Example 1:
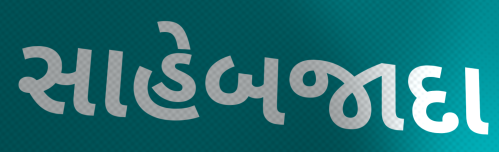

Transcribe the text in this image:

સાહેબજાદા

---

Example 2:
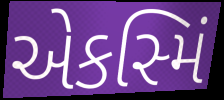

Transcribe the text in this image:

એકસ્મિં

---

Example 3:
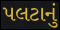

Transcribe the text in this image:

પલટાનું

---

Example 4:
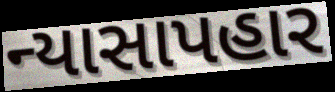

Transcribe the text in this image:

ન્યાસાપહાર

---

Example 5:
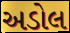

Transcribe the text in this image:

અડોલ